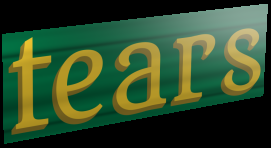
tears